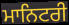
ਮਾਨਿਟਰੀ